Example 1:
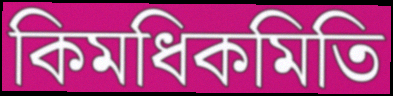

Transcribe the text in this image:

কিমধিকমিতি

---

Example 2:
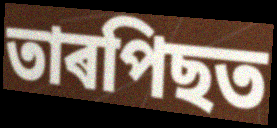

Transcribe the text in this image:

তাৰপিছত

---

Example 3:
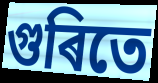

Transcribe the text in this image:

গুৰিতে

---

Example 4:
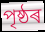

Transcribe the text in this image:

পৃষ্ঠৰ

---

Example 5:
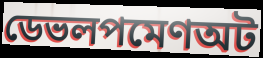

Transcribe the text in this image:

ডেভলপমেণঅট